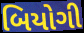
બિયોગી